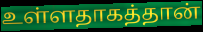
உள்ளதாகத்தான்